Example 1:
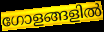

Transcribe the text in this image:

ഗോളങ്ങളിൽ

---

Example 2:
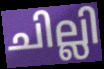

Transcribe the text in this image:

ചില്ലി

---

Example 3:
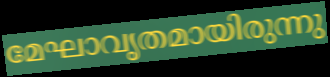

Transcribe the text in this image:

മേഘാവൃതമായിരുന്നു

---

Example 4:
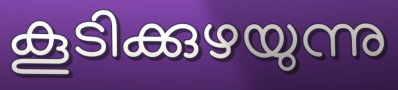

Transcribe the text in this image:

കൂടിക്കുഴയുന്നു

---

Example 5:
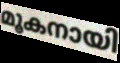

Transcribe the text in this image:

മൂകനായി